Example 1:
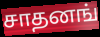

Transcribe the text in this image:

சாதனங்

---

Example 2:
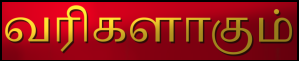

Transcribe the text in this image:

வரிகளாகும்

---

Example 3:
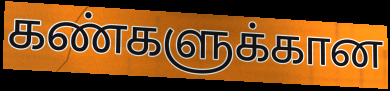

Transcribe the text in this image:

கண்களுக்கான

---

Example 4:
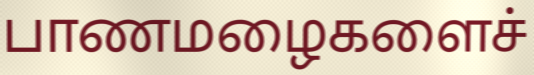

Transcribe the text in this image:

பாணமழைகளைச்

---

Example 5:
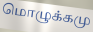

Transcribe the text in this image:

மொழுக்கமு